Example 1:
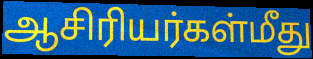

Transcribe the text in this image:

ஆசிரியர்கள்மீது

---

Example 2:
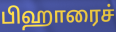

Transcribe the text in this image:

பிஹாரைச்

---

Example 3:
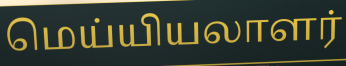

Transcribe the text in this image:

மெய்யியலாளர்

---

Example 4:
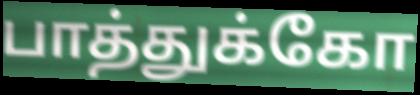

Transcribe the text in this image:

பாத்துக்கோ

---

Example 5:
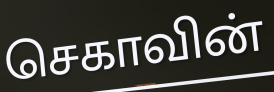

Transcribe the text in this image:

செகாவின்